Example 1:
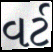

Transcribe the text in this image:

વર્ટ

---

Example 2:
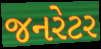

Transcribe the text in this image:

જનરેટર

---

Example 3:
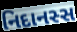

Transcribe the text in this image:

નિદાનસ્સ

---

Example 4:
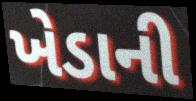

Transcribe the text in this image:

ખેડાની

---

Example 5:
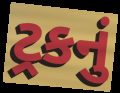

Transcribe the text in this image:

ટ્રકનું